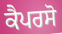
ਕੈਪਰਸੋ